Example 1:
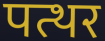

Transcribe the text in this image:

पत्थर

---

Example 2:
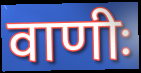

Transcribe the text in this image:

वाणीः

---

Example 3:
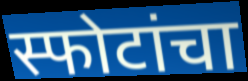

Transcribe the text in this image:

स्फोटांचा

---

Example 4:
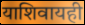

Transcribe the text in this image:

याशिवायही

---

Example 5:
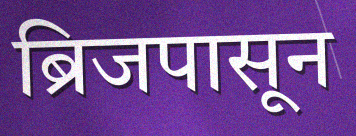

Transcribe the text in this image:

ब्रिजपासून